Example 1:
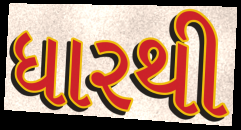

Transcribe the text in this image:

ધારથી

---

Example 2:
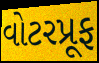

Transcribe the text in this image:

વોટરપ્રૂફ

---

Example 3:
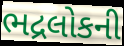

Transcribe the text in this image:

ભદ્રલોકની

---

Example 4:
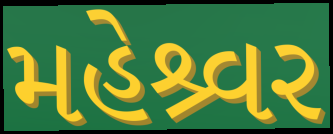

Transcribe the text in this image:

મહેશ્ર્વર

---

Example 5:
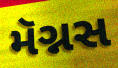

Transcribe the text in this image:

મૅગ્નસ